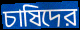
চাষিদের